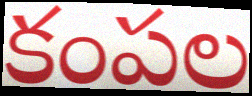
కంపల